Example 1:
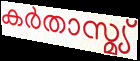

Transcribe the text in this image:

കർതാസ്മ്യ്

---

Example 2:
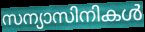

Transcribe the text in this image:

സന്യാസിനികൾ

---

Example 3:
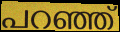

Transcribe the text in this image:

പറഞ്ഞ്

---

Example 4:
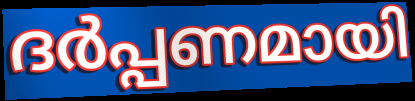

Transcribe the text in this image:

ദർപ്പണമായി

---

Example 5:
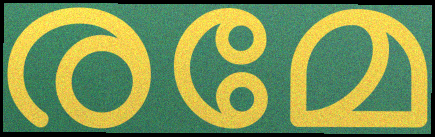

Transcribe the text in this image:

രമേ